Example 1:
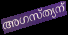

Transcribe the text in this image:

അഗസ്ത്യന്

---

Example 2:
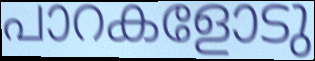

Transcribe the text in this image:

പാറകളോടു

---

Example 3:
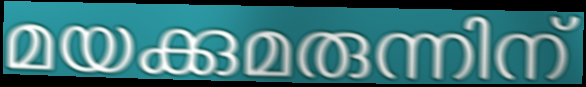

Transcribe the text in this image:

മയക്കുമരുന്നിന്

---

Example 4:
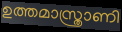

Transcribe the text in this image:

ഉത്തമാസ്ത്രാണി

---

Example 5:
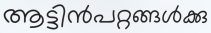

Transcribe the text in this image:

ആട്ടിൻപറ്റങ്ങൾക്കു